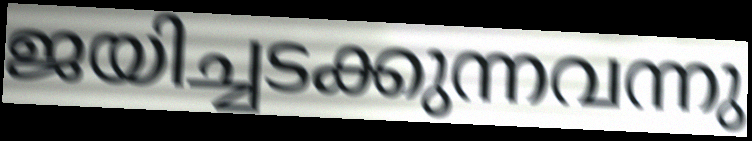
ജയിച്ചടക്കുന്നവന്നു